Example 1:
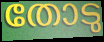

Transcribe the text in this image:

തോടു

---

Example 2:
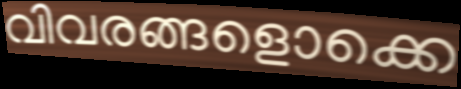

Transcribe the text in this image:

വിവരങ്ങളൊക്കെ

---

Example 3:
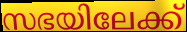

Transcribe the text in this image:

സഭയിലേക്ക്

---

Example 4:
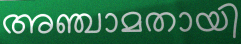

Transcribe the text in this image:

അഞ്ചാമതായി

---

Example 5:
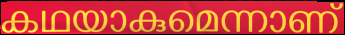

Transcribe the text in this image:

കഥയാകുമെന്നാണ്